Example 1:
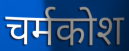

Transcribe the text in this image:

चर्मकोश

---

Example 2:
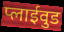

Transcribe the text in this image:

प्लाईवुड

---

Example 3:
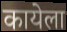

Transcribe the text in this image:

कायेला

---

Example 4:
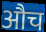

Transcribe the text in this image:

औच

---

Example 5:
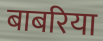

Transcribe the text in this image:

बाबरिया